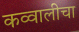
कव्वालीचा